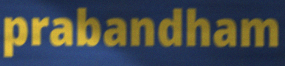
prabandham